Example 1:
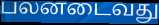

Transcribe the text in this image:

பலனடைவது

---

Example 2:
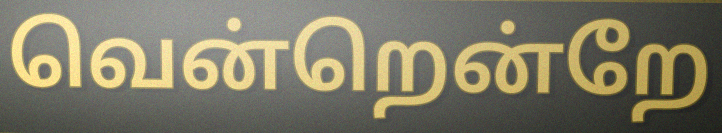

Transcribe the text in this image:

வென்றென்றே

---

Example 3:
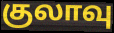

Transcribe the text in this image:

குலாவு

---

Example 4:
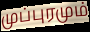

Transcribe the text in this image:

முப்புரமும்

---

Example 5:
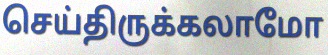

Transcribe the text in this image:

செய்திருக்கலாமோ